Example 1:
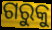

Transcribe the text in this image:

ଗରୁକୁ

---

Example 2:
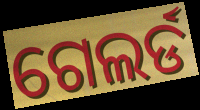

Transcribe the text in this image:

ଗେଲର୍ଡ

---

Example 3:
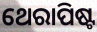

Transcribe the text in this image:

ଥେରାପିଷ୍ଟ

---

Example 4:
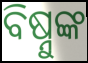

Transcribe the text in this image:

ବିଷ୍ନୁଙ୍କ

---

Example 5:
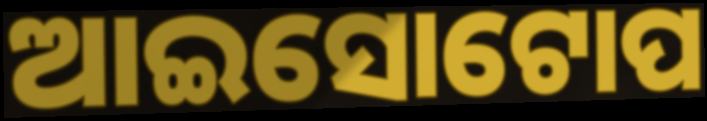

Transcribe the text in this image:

ଆଇସୋଟୋପ